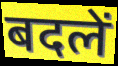
बदलें